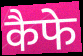
कैफे